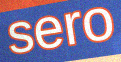
sero